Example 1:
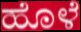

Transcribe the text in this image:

ಹೊಳೆ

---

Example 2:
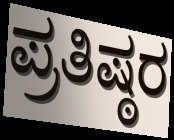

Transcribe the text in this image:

ಪ್ರತಿಷ್ಠರ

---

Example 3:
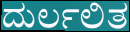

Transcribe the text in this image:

ದುರ್ಲಲಿತ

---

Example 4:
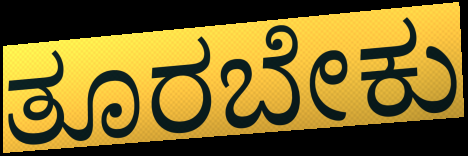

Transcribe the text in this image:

ತೂರಬೇಕು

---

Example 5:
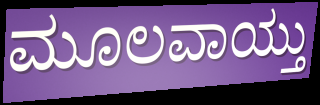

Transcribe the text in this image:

ಮೂಲವಾಯ್ತು